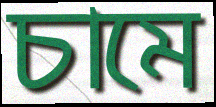
চামে